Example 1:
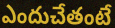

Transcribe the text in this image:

ఎందుచేతంటే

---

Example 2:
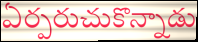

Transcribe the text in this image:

ఏర్పరుచుకొన్నాడు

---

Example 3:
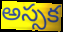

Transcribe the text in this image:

అస్సక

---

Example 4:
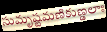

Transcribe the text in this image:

సుమృష్టమణికుణ్డలాః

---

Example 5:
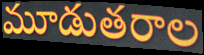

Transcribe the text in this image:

మూడుతరాల